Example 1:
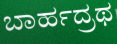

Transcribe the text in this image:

ಬಾರ್ಹದ್ರಥ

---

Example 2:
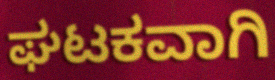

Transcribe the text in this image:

ಘಟಕವಾಗಿ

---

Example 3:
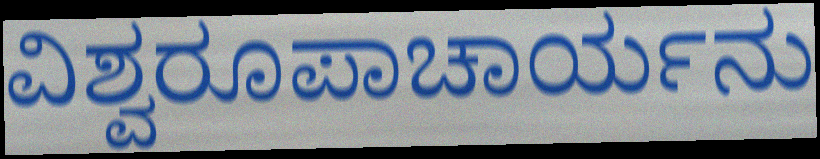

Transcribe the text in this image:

ವಿಶ್ವರೂಪಾಚಾರ್ಯನು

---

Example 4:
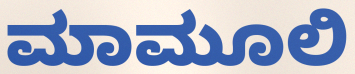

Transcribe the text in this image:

ಮಾಮೂಲಿ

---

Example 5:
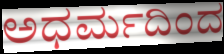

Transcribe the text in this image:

ಅಧರ್ಮದಿಂದ